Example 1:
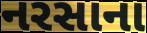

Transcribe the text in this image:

નરસાના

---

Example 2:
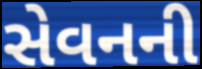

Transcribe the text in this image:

સેવનની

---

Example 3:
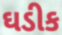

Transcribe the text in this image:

ઘડીક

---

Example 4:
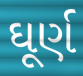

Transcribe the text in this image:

ઘૂર્ણ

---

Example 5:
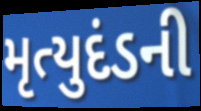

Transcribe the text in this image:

મૃત્યુદંડની